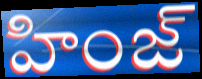
హింజ్